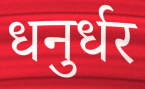
धनुर्धर